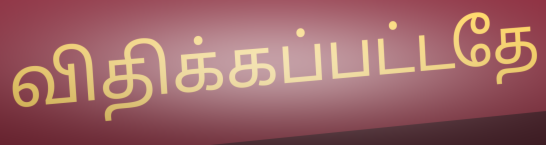
விதிக்கப்பட்டதே